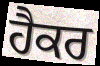
ਹੈਕਰ